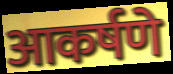
आकर्षणे